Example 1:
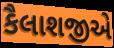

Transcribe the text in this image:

કૈલાશજીએ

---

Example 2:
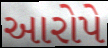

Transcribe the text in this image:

આરોપે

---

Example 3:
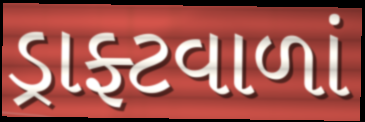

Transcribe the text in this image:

ડ્રાફ્ટવાળાં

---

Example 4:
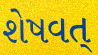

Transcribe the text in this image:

શેષવત્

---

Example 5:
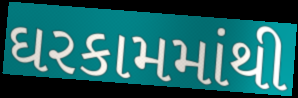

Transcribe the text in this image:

ઘરકામમાંથી